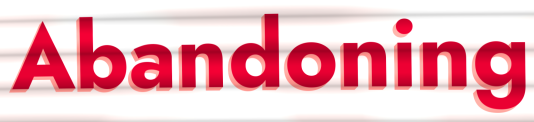
Abandoning